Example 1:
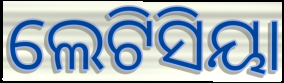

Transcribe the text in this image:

ଲେଟିସିୟା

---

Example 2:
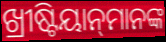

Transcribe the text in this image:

ଖ୍ରୀଷ୍ଟିୟାନ୍‌ମାନଙ୍କ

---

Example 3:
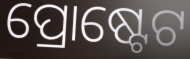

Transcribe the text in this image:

ପ୍ରୋଷ୍ଟେଟ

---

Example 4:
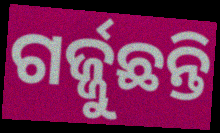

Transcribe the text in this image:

ଗର୍ଜ୍ଜୁଛନ୍ତି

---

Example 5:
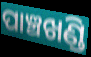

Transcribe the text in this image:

ପାଞ୍ଚଖଣ୍ଡି